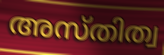
അസ്തിത്വ